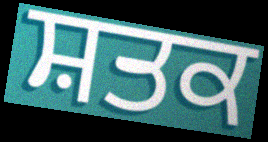
ਸ਼ਤਕ